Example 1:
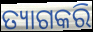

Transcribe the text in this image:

ତ୍ୟାଗକରି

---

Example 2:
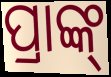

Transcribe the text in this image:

ପ୍ରାଙ୍କ୍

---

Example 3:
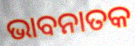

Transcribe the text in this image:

ଭାବନାତକ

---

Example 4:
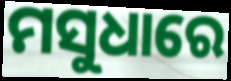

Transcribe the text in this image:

ମସୁଧାରେ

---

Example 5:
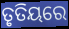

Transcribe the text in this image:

ତୃତିୟରେ